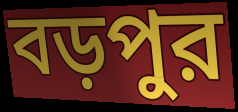
বড়পুর